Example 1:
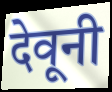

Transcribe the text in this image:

देवूनी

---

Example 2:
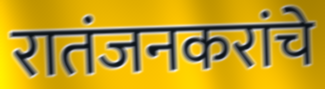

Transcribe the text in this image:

रातंजनकरांचे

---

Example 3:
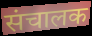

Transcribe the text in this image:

संचालक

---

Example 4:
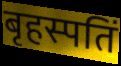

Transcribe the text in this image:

बृहस्पतिं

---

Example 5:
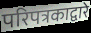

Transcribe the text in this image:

परिपत्रकाद्वारे